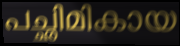
പച്ഛിമികായ